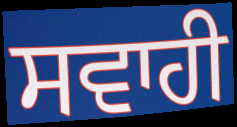
ਸਵਾਹੀ